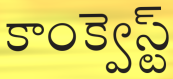
కాంక్వెస్ట్